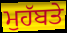
ਮੁਹੱਬਤੇ